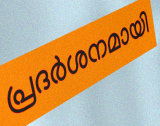
പ്രദർശനമായി